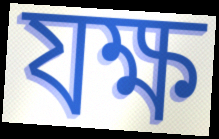
যক্ষ